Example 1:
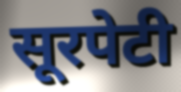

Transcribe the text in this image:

सूरपेटी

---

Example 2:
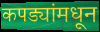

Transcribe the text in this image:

कपड्यांमधून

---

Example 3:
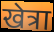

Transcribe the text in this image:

खेत्रा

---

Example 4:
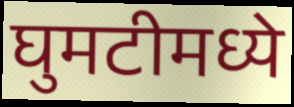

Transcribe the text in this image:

घुमटीमध्ये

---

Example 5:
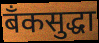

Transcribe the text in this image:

बँकसुद्धा